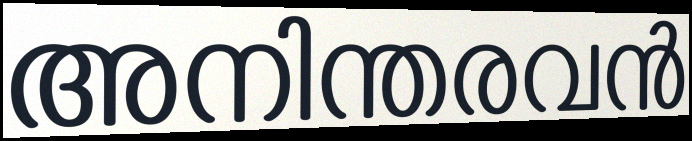
അനിന്തരവൻ